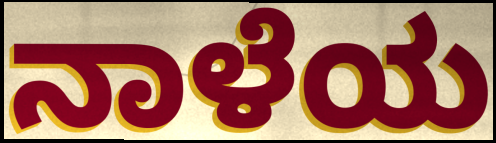
ನಾಳೆಯ